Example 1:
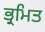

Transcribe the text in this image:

ਭ੍ਰਮਿਤ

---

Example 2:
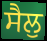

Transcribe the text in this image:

ਸੈਲੁ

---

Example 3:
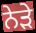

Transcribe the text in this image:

ਨੇਡ਼ੇ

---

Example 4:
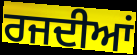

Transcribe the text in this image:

ਰਜਦੀਆਂ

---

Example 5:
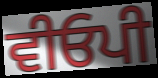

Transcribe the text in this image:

ਵੀਓਪੀ